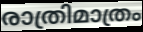
രാത്രിമാത്രം